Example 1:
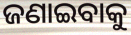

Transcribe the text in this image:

ଜଣାଇବାକୁ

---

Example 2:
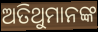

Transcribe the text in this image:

ଅତିଥୁମାନଙ୍କ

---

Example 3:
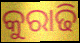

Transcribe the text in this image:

କୁରାଢି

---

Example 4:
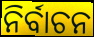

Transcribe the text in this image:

ନିର୍ବାଚନ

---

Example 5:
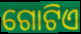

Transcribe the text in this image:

ଗୋଟିଏ